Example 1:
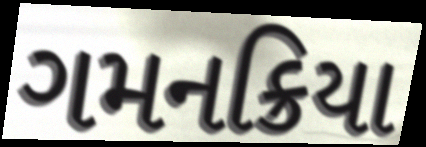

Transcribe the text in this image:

ગમનક્રિયા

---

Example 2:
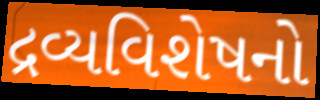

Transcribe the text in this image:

દ્રવ્યવિશેષનો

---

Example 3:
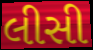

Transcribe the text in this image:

લીસી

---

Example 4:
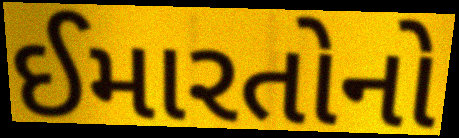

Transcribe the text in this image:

ઈમારતોનો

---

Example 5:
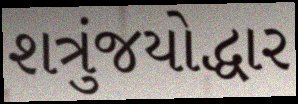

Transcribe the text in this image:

શત્રુંજયોદ્ધાર